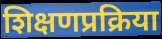
शिक्षणप्रक्रिया